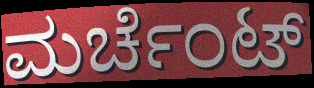
ಮರ್ಚೆಂಟ್